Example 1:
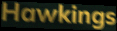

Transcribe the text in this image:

Hawkings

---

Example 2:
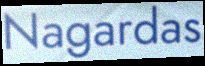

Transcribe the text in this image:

Nagardas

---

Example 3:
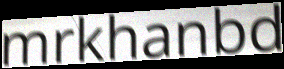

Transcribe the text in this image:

mrkhanbd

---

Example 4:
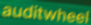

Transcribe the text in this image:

auditwheel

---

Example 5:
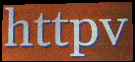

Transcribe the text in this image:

httpv